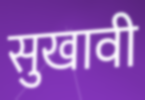
सुखावी